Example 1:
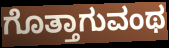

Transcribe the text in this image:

ಗೊತ್ತಾಗುವಂಥ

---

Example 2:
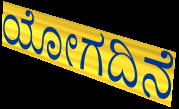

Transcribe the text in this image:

ಯೋಗದಿನೆ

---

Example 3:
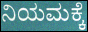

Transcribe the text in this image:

ನಿಯಮಕ್ಕೆ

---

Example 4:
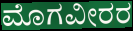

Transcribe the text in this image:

ಮೊಗವೀರರ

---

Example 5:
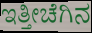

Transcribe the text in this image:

ಇತ್ತೀಚೆಗಿನ